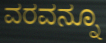
ವರವನ್ನೂ